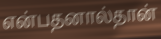
என்பதனால்தான்